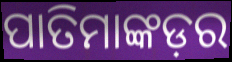
ପାତିମାଙ୍କଡ଼ର